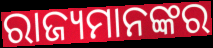
ରାଜ୍ୟମାନଙ୍କର